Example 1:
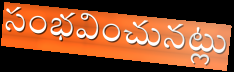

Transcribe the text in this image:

సంభవించునట్లు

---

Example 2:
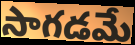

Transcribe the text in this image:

సాగడమే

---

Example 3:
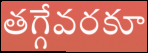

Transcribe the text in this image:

తగ్గేవరకూ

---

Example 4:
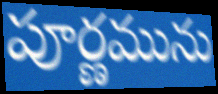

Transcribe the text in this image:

పూర్ణమును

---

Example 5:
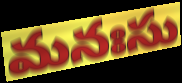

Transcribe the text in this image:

మనఃసు